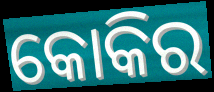
କୋକିର